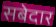
सबेदार